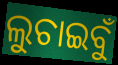
ଲୁଚାଇବୁଁ